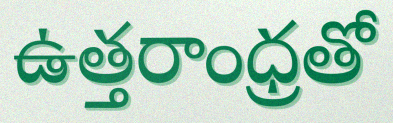
ఉత్తరాంధ్రతో